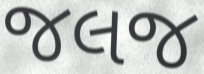
જલજ